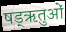
षड्ऋतुओं